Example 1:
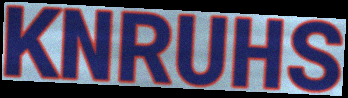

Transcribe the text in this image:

KNRUHS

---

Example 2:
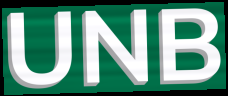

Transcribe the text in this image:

UNB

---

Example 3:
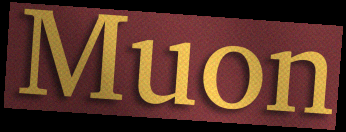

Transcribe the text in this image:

Muon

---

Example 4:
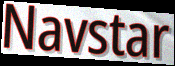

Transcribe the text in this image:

Navstar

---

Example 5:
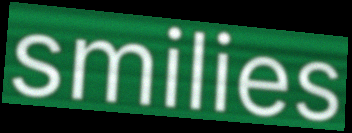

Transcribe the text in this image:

smilies